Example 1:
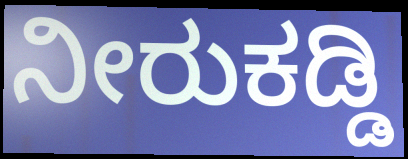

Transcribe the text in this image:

ನೀರುಕಡ್ಡಿ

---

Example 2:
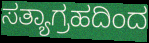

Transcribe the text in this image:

ಸತ್ಯಾಗ್ರಹದಿಂದ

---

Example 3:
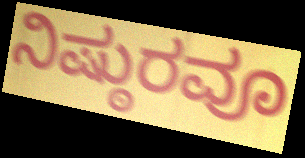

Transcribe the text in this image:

ನಿಷ್ಠುರವೂ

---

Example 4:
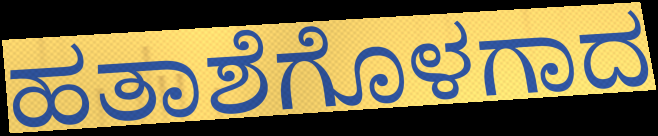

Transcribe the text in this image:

ಹತಾಶೆಗೊಳಗಾದ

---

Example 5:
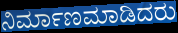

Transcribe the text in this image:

ನಿರ್ಮಾಣಮಾಡಿದರು